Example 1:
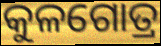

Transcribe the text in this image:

କୁଳଗୋତ୍ର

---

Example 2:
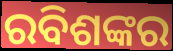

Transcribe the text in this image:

ରବିଶଙ୍କର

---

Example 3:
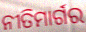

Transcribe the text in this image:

ନୀତିମାର୍ଗର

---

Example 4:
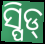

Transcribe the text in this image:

ସ୍ପିଡ୍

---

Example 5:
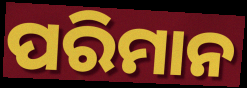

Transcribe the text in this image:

ପରିମାନ